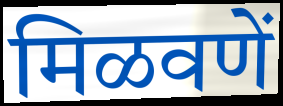
मिळवणें